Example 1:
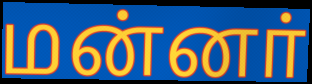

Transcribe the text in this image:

மன்னர்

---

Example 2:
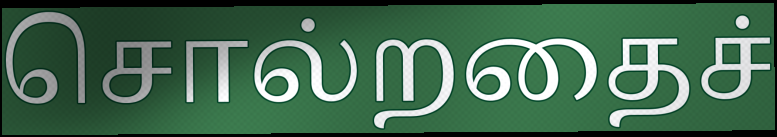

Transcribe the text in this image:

சொல்றதைச்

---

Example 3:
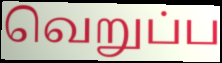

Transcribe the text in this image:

வெறுப்ப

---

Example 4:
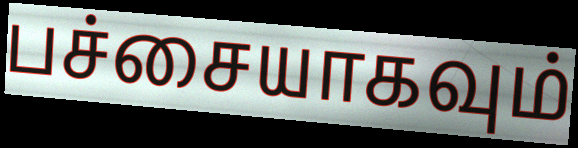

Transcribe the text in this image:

பச்சையாகவும்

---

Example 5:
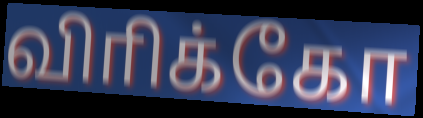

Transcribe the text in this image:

விரிக்கோ